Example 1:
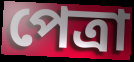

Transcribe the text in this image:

পেত্রা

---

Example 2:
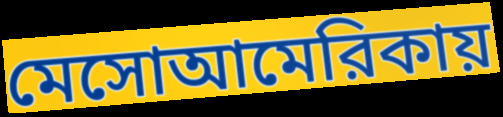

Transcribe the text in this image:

মেসোআমেরিকায়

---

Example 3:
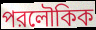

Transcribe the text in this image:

পরলৌকিক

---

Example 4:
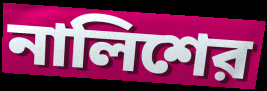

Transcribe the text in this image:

নালিশের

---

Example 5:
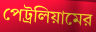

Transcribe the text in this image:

পেট্রলিয়ামের